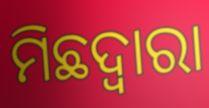
ମିଛଦ୍ଵାରା